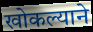
खोकल्याने